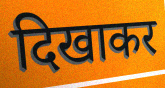
दिखाकर